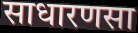
साधारणसा